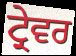
ਟ੍ਰੇਵਰ